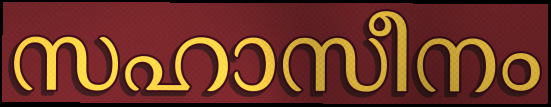
സഹാസീനം